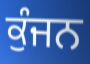
ਕੁੰਜਨ